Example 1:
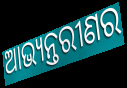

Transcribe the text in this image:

ଆଭ୍ୟନ୍ତରୀଣର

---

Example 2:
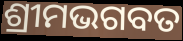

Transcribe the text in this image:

ଶ୍ରୀମଭଗବତ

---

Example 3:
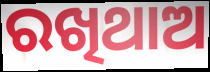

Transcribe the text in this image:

ରଖିଥାଅ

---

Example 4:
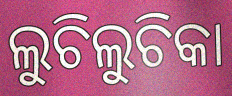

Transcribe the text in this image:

ଲୁଚିଲୁଚିକା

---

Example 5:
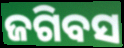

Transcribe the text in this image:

ଜଗିବସ